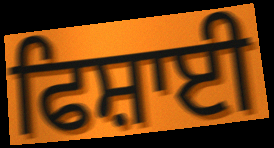
ਫਿਸ਼ਾਈ